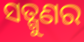
ସତ୍ଗୁଣର